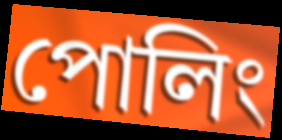
পোলিং